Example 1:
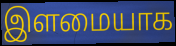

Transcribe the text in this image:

இளமையாக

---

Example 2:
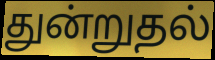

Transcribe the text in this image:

துன்றுதல்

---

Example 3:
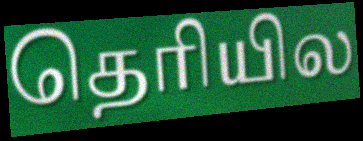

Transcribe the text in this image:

தெரியில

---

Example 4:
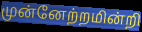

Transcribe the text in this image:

முன்னேற்றமின்றி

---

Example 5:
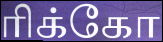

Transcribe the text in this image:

ரிக்கோ